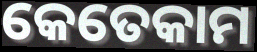
କେତେକାମ